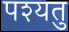
पश्यतु